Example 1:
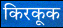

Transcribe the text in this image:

किरकूक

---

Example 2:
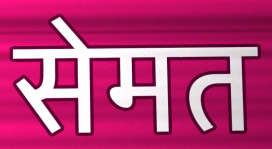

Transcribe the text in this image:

सेमत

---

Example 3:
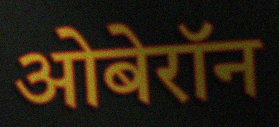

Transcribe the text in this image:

ओबेरॉन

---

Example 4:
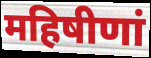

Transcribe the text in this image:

महिषीणां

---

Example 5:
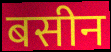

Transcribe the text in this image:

बसीन